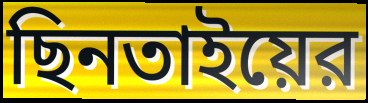
ছিনতাইয়ের